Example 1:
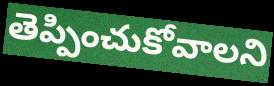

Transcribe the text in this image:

తెప్పించుకోవాలని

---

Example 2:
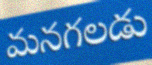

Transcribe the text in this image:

మనగలడు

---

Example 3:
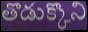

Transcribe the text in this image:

తొడుక్కొని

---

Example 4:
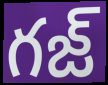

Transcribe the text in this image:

గజ్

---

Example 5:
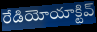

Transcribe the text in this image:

రేడియోయాక్టివ్